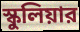
স্কুলিয়ার